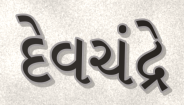
દેવચંદ્રે